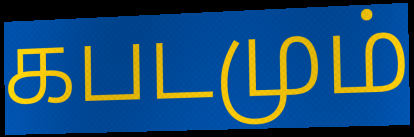
கபடமும்